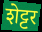
शेट्टर